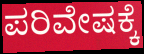
ಪರಿವೇಷಕ್ಕೆ